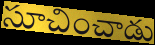
సూచించాడు